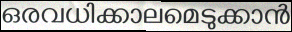
ഒരവധിക്കാലമെടുക്കാൻ